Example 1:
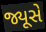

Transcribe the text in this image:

જ્યૂસે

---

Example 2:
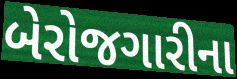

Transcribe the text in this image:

બેરોજગારીના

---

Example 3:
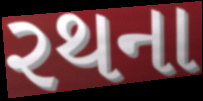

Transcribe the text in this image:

રથના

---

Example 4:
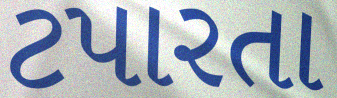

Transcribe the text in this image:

ટપારતા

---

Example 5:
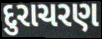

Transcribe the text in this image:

દુરાચરણ